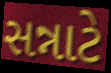
સન્નાટે